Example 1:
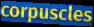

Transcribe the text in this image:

corpuscles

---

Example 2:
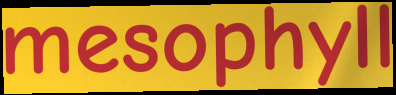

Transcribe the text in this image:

mesophyll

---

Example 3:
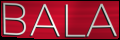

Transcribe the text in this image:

BALA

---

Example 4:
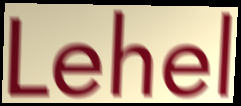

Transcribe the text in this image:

Lehel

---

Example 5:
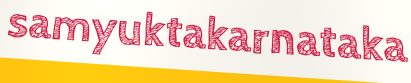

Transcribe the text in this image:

samyuktakarnataka